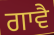
ਗਾਵੈ